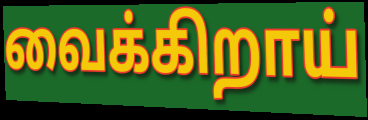
வைக்கிறாய்